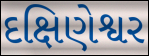
દક્ષિણેશ્વર